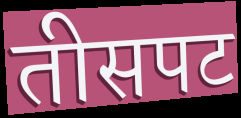
तीसपट